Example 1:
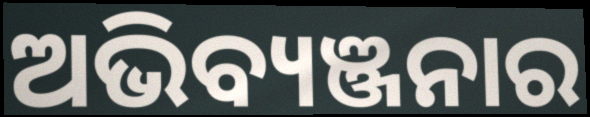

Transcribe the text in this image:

ଅଭିବ୍ୟଞ୍ଜନାର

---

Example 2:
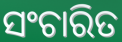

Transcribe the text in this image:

ସଂଚାରିତ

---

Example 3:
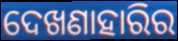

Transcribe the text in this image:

ଦେଖଣାହାରିର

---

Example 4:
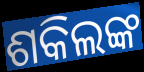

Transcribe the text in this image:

ଶକିଲଙ୍କ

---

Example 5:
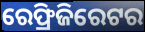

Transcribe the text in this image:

ରେଫ୍ରିଜିରେଟର